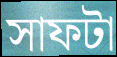
সাফটা